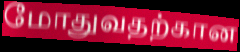
மோதுவதற்கான